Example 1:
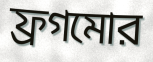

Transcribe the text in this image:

ফ্রগমোর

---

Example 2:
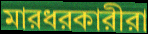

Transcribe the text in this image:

মারধরকারীরা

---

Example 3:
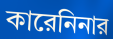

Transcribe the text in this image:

কারেনিনার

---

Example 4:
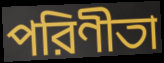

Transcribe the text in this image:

পরিণীতা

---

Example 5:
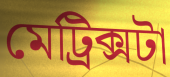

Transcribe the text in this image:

মেট্রিক্সটা